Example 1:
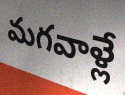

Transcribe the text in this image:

మగవాళ్లే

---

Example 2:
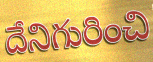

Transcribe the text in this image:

దేనిగురించి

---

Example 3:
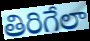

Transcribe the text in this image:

తిరిగేలా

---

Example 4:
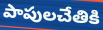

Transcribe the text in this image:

పాపులచేతికి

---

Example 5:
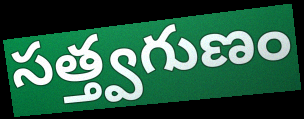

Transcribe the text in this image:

సత్త్వగుణం